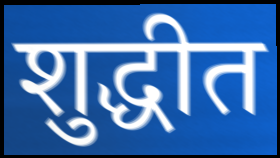
शुद्धीत